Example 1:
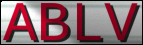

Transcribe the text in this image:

ABLV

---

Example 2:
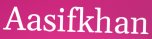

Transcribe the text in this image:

Aasifkhan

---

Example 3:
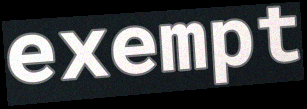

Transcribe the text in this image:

exempt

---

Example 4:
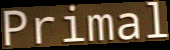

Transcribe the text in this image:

Primal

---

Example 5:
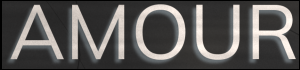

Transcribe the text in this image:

AMOUR